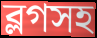
ব্লগসহ